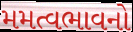
મમત્વભાવનો